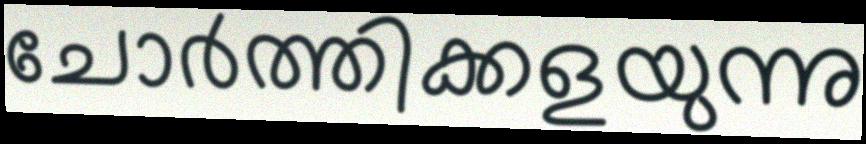
ചോർത്തിക്കളയുന്നു